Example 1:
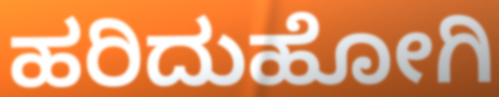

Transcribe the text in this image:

ಹರಿದುಹೋಗಿ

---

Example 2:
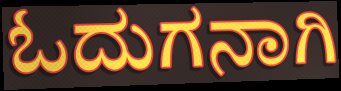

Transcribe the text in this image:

ಓದುಗನಾಗಿ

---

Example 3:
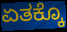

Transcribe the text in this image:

ಏತಕ್ಕೊ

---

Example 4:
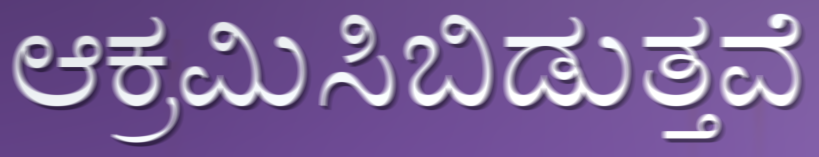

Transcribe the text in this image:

ಆಕ್ರಮಿಸಿಬಿಡುತ್ತವೆ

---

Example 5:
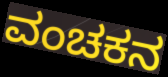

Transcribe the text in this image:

ವಂಚಕನ